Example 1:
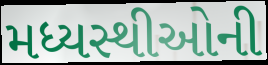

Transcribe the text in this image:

મધ્યસ્થીઓની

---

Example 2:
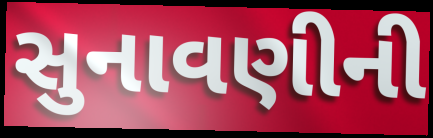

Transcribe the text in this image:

સુનાવણીની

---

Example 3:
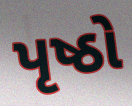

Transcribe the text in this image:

પૃષ્ઠો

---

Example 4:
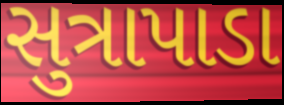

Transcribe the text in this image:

સુત્રાપાડા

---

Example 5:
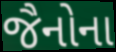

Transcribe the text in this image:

જૈનોના